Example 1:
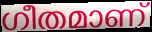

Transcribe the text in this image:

ഗീതമാണ്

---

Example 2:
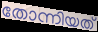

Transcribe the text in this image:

തോന്നിയത്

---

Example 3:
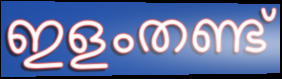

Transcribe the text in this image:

ഇളംതണ്ട്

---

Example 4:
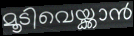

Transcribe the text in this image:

മൂടിവെയ്ക്കാൻ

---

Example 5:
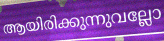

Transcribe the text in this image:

ആയിരിക്കുന്നുവല്ലോ